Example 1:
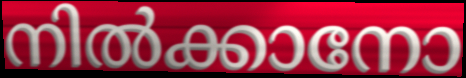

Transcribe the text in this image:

നിൽക്കാനോ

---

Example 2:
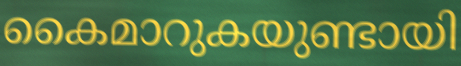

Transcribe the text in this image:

കൈമാറുകയുണ്ടായി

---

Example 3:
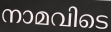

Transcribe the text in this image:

നാമവിടെ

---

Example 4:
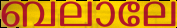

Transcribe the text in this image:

ബലാലേ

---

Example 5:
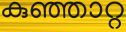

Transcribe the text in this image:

കുഞ്ഞാറ്റ